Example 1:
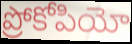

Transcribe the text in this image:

ప్రోకోపియో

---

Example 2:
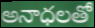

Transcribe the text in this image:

అనాధలతో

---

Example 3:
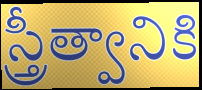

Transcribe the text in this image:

స్త్రీత్వానికి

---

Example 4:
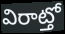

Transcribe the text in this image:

విరాట్తో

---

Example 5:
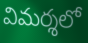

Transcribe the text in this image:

విమర్శలో